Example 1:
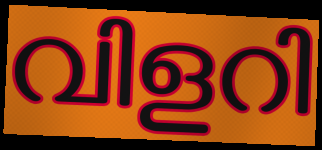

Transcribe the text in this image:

വിളറി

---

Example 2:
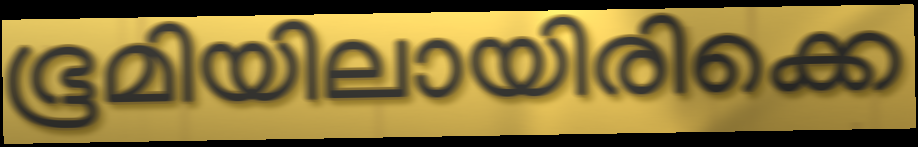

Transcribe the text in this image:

ഭൂമിയിലായിരിക്കെ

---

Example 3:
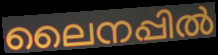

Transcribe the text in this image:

ലൈനപ്പിൽ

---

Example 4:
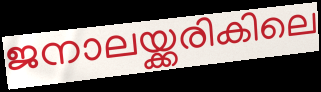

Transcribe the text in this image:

ജനാലയ്ക്കരികിലെ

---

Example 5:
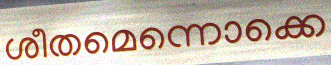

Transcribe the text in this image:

ശീതമെന്നൊക്കെ